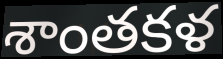
శాంతకళ